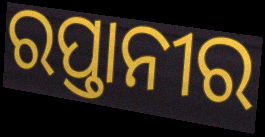
ରପ୍ତାନୀର